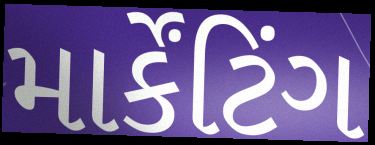
માર્કેંટિંગ